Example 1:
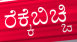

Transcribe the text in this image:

ರೆಕ್ಕೆಬಿಚ್ಚಿ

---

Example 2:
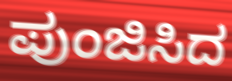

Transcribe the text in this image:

ಪುಂಜಿಸಿದ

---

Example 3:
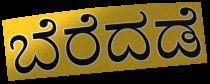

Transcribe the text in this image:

ಬೆರೆದಡೆ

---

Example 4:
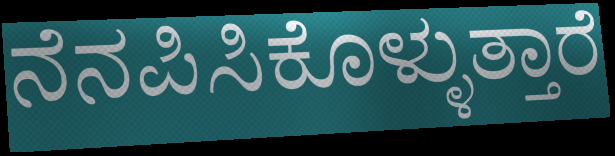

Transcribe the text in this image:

ನೆನಪಿಸಿಕೊಳ್ಳುತ್ತಾರೆ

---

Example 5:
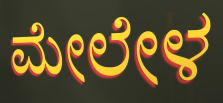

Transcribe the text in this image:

ಮೇಲೇಳ